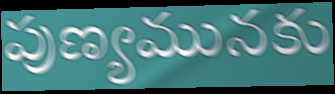
పుణ్యమునకు